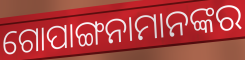
ଗୋପାଙ୍ଗନାମାନଙ୍କର